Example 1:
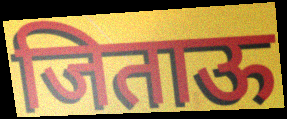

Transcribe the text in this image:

जिताऊ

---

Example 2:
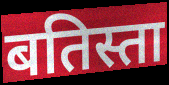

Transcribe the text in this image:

बतिस्ता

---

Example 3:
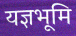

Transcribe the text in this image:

यज्ञभूमि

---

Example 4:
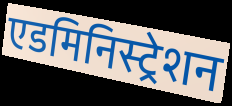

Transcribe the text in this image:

एडमिनिस्ट्रेशन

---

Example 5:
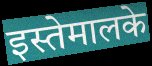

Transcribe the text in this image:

इस्तेमालके